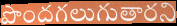
పొందగలుగుతారని